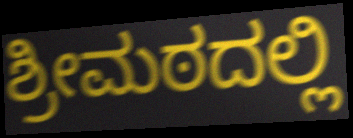
ಶ್ರೀಮಠದಲ್ಲಿ